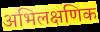
अभिलक्षणिक